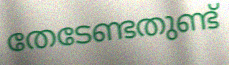
തേടേണ്ടതുണ്ട്